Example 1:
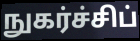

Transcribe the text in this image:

நுகர்ச்சிப்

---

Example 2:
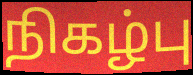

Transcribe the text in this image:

நிகழ்பு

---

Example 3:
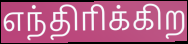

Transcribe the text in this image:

எந்திரிக்கிற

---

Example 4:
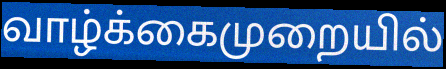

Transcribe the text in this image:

வாழ்க்கைமுறையில்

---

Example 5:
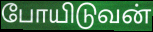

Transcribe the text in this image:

போயிடுவன்